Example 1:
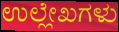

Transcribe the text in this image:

ಉಲ್ಲೇಖಗಳು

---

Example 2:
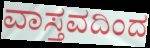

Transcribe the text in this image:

ವಾಸ್ತವದಿಂದ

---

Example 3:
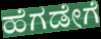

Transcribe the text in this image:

ಹೆಗಡೇಗೆ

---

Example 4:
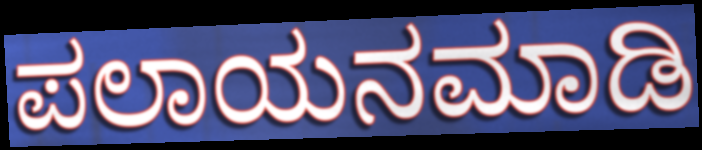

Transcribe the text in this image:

ಪಲಾಯನಮಾಡಿ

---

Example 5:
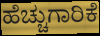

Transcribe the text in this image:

ಹೆಚ್ಚುಗಾರಿಕೆ